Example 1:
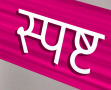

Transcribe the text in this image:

स्पष्ट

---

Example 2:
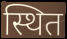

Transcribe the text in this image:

स्थित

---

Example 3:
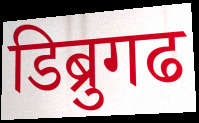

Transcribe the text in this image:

डिब्रुगढ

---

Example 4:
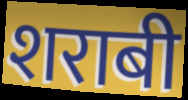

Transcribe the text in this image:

शराबी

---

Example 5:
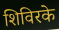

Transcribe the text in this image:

शिविरके